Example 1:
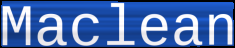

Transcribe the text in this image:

Maclean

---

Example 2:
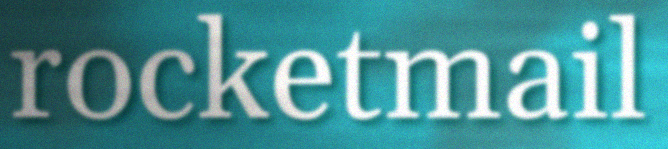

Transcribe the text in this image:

rocketmail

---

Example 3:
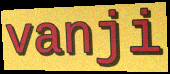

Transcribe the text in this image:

vanji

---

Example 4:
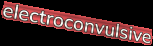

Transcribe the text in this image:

electroconvulsive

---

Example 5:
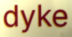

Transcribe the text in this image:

dyke